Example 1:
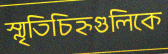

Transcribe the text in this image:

স্মৃতিচিহ্নগুলিকে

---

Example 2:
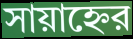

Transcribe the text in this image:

সায়াহ্নের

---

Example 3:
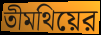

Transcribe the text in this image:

তীমথিয়ের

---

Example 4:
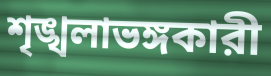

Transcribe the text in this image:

শৃঙ্খলাভঙ্গকারী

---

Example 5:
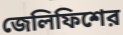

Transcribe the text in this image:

জেলিফিশের